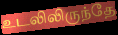
உடலிலிருந்தே